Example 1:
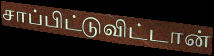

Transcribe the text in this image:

சாப்பிட்டுவிட்டான்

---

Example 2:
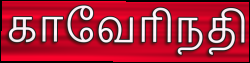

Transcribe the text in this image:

காவேரிநதி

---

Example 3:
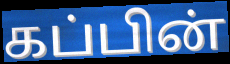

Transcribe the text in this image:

கப்பின்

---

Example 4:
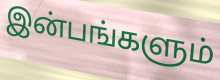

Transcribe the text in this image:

இன்பங்களும்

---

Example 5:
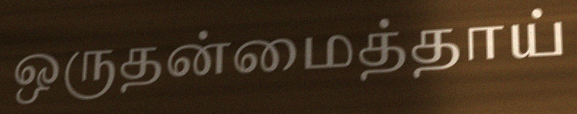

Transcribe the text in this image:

ஒருதன்மைத்தாய்